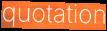
quotation